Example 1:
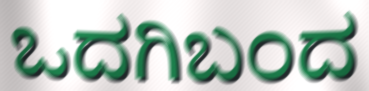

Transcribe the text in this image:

ಒದಗಿಬಂದ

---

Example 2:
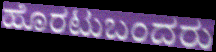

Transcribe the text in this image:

ಹೊರಟುಬಂದರು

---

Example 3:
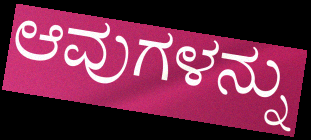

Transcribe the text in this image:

ಆವುಗಳನ್ನು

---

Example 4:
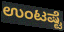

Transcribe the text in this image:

ಉಂಟಷ್ಟೆ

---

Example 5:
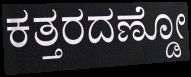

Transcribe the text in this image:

ಕತ್ತರದಣ್ಡೋ